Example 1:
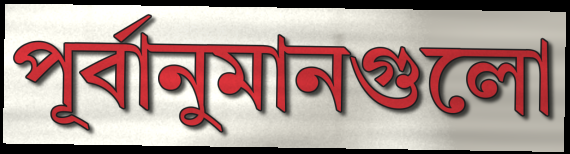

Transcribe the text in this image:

পূর্বানুমানগুলো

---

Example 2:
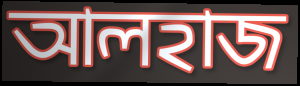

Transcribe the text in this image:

আলহাজ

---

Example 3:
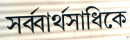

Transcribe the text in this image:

সর্ব্বার্থসাধিকে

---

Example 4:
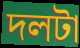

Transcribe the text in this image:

দলটা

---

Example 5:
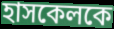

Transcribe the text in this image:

হাসকেলকে